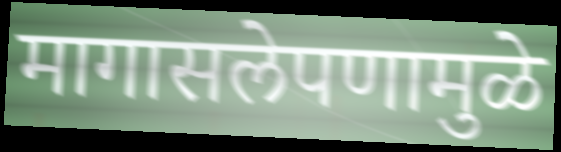
मागासलेपणामुळे